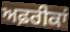
ਅਫ਼ਰੀਕਾਂ